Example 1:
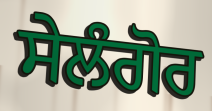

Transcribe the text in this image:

ਸੇਲੰਗੋਰ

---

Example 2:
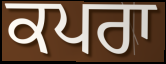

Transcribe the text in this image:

ਕਪਰਾ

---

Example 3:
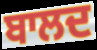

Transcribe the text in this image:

ਬਾਲਦ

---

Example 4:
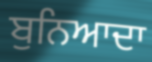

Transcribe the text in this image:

ਬੁਨਿਆਦਾ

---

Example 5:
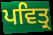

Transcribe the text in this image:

ਪਵਿਤ੍ਰ